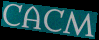
CACM